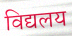
विद्यलय